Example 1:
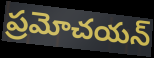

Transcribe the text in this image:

ప్రమోచయన్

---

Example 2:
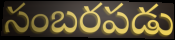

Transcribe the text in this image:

సంబరపడు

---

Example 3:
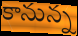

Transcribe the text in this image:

కానున్న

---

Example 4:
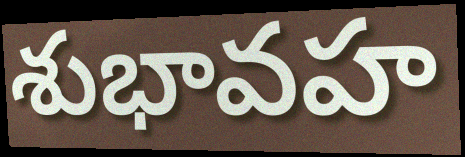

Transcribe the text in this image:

శుభావహ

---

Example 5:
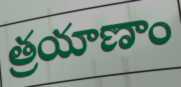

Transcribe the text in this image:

త్రయాణాం